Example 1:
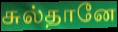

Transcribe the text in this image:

சுல்தானே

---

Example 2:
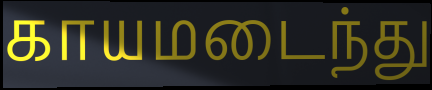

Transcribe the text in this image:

காயமடைந்து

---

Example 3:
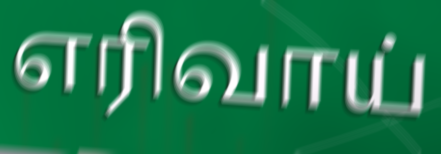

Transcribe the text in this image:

எரிவாய்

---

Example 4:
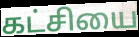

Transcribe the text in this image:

கட்சியை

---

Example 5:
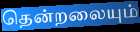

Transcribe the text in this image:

தென்றலையும்